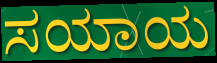
ಸಯಾಯ